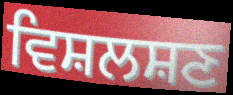
ਵਿਸ਼ਲਸ਼ਣ